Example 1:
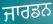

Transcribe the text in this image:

ਜਾਰਡਨ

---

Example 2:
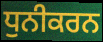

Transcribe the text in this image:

ਧੁਨੀਕਰਨ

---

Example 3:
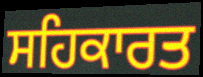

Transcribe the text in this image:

ਸਹਿਕਾਰਤ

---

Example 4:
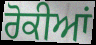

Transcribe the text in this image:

ਰੋਕੀਆਂ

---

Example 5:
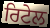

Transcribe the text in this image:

ਰਿਟੇਲ